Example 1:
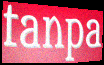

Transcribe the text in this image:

tanpa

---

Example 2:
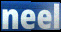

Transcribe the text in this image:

neel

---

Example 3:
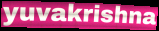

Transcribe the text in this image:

yuvakrishna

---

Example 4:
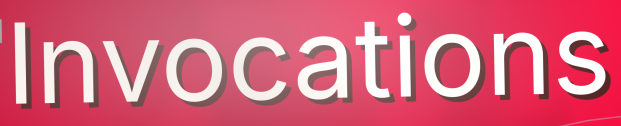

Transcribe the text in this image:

Invocations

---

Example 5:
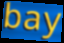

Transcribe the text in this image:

bay